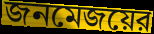
জনমেজয়ের